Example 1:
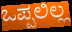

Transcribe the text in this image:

ಒಪ್ಪಲಿಲ್ಲ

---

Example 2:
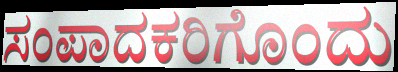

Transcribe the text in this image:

ಸಂಪಾದಕರಿಗೊಂದು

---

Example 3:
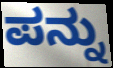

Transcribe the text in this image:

ಪನ್ನು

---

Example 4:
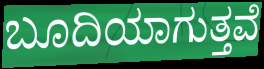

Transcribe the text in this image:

ಬೂದಿಯಾಗುತ್ತವೆ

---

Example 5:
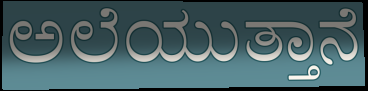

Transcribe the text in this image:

ಅಲೆಯುತ್ತಾನೆ